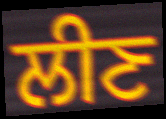
ਲੀਣ